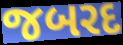
જબરદ